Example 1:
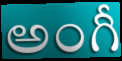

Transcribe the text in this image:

అంగీ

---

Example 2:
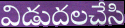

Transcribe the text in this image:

విడుదలచేసి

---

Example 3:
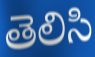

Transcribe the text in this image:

తెలిసి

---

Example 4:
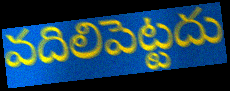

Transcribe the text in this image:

వదిలిపెట్టదు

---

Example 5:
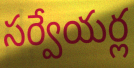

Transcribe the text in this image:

సర్వేయర్ల